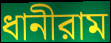
ধানীরাম